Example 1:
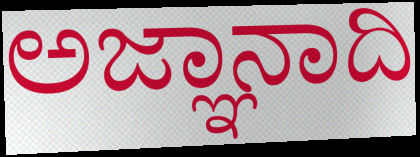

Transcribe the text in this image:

ಅಜ್ಞಾನಾದಿ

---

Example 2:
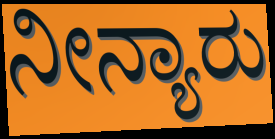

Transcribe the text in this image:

ನೀನ್ಯಾರು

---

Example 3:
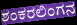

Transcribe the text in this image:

ಶಂಕರಲಿಂಗನ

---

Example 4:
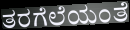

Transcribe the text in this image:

ತರಗೆಲೆಯಂತೆ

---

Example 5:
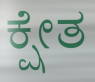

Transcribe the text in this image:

ಕ್ಷೇತ